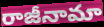
రాజీనామా